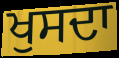
ਖੁਸਦਾ